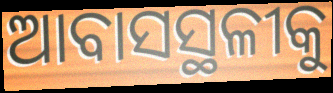
ଆବାସସ୍ଥଳୀକୁ